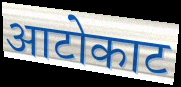
आटोकाट